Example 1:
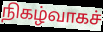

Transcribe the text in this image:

நிகழ்வாகச்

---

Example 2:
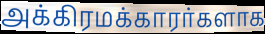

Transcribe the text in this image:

அக்கிரமக்காரர்களாக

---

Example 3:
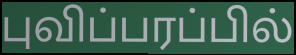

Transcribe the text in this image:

புவிப்பரப்பில்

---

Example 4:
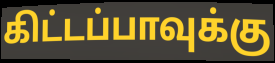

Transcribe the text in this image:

கிட்டப்பாவுக்கு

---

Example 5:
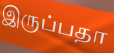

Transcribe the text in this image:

இருப்பதா